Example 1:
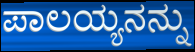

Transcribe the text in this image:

ಪಾಲಯ್ಯನನ್ನು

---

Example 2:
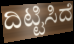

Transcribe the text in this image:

ದಿಟ್ಟಿಸಿದೆ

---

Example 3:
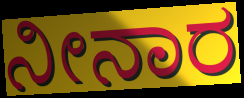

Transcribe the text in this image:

ನೀನಾರ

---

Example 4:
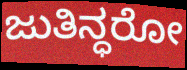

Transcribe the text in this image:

ಜುತಿನ್ಧರೋ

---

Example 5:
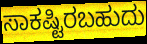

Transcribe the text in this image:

ಸಾಕಷ್ಟಿರಬಹುದು